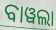
ବାୱଲା